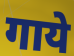
गाये